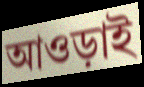
আওড়াই